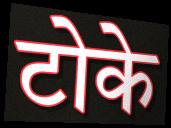
टोके